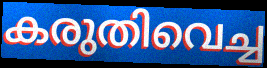
കരുതിവെച്ച